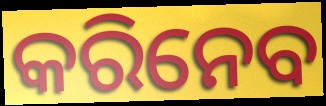
କରିନେବ